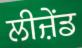
ਲੀਜ਼ੇਂਡ